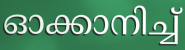
ഓക്കാനിച്ച്